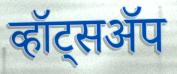
व्हॉट्सॲप